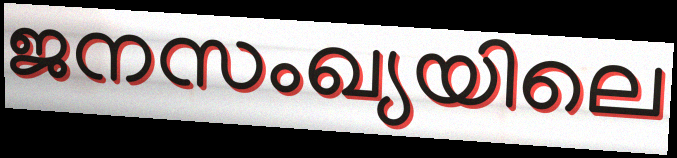
ജനസംഖ്യയിലെ